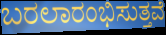
ಬರಲಾರಂಭಿಸುತ್ತವೆ